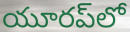
యూరప్‌లో